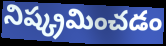
నిష్క్రమించడం